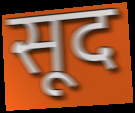
सूद